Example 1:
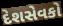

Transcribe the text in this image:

દેશસેવકો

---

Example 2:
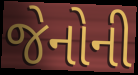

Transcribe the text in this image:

જેનોની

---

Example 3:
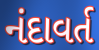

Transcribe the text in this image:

નંદાવર્ત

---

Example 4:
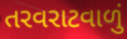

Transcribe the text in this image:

તરવરાટવાળું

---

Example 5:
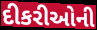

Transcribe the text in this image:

દીકરીઓની